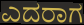
ಎದರಾಗ